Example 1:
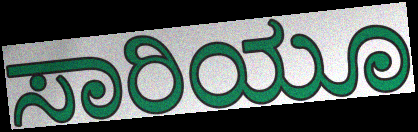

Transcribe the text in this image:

ಸಾರಿಯೂ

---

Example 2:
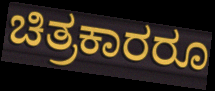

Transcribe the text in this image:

ಚಿತ್ರಕಾರರೂ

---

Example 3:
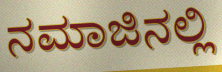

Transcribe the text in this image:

ನಮಾಜಿನಲ್ಲಿ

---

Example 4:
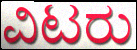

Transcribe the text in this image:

ವಿಟರು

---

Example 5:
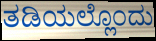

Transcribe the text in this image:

ತಡಿಯಲ್ಲೊಂದು